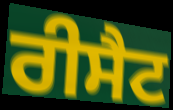
ਰੀਸੈਟ